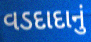
વડદાદાનું